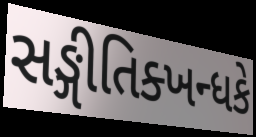
સઙ્ગીતિક્ખન્ધકે